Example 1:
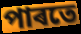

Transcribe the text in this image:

পাৰতে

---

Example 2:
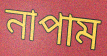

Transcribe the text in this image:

নাপাম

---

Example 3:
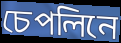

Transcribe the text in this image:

চেপলিনে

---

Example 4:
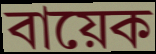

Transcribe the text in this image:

বায়েক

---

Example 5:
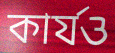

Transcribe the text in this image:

কাৰ্যও